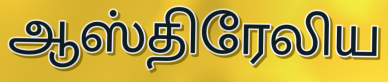
ஆஸ்திரேலிய